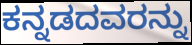
ಕನ್ನಡದವರನ್ನು